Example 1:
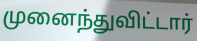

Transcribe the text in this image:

முனைந்துவிட்டார்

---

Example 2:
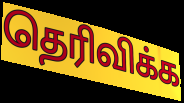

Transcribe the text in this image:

தெரிவிக்க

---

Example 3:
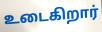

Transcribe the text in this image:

உடைகிறார்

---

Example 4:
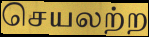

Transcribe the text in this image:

செயலற்ற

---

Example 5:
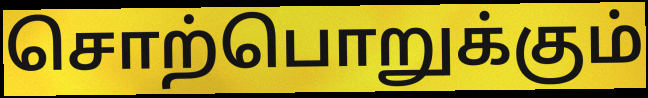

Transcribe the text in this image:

சொற்பொறுக்கும்